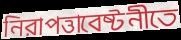
নিরাপত্তাবেষ্টনীতে